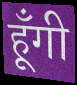
हूँगी